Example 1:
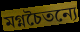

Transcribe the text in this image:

মগ্নচৈতন্যে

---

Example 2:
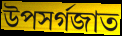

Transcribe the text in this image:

উপসর্গজাত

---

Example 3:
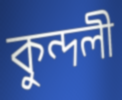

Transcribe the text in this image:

কুন্দলী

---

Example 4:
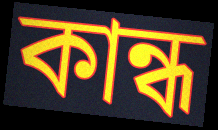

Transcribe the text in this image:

কান্ধ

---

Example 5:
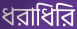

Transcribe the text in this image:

ধরাধিরি